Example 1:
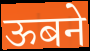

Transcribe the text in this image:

ऊबने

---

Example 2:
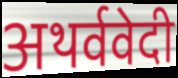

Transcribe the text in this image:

अथर्ववेदी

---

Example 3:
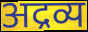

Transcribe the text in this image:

अद्रव्य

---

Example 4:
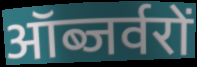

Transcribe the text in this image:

ऑब्जर्वरों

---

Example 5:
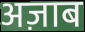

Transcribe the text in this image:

अज़ाब